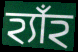
হ্যাঁহ